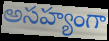
అసహ్యంగా